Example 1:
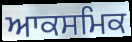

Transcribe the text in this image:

ਆਕਸਮਿਕ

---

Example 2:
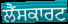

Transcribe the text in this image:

ਲੈਂਸਕਾਰਟ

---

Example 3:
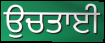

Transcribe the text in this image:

ਉਚਤਾਈ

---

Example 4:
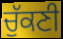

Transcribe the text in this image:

ਚੁੱਕਣੀ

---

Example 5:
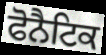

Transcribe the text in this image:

ਫੋਨੈਟਿਕ